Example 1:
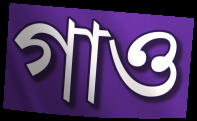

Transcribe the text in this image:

গাও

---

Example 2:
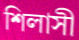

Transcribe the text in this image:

শিলাসী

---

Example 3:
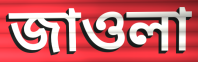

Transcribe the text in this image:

জাওলা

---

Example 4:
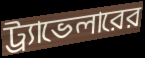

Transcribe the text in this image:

ট্র্যাভেলারের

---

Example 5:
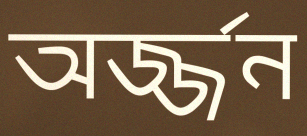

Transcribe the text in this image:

অর্জ্জন